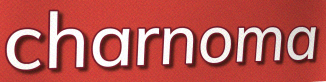
charnoma